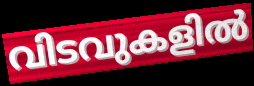
വിടവുകളിൽ